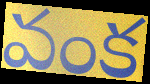
వంక